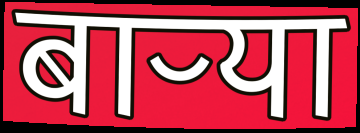
बाऱ्या